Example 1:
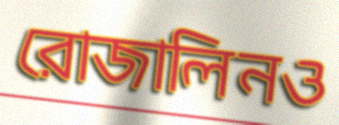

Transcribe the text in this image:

রোজালিনও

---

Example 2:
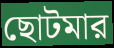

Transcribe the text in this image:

ছোটমার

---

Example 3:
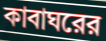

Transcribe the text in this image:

কাবাঘরের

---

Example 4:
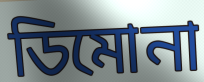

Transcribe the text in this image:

ডিমোনা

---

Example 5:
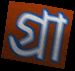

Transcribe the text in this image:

গ্রা